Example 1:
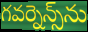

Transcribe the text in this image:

గవర్నెన్స్‌ను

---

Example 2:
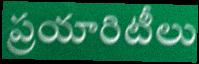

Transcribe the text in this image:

ప్రయారిటీలు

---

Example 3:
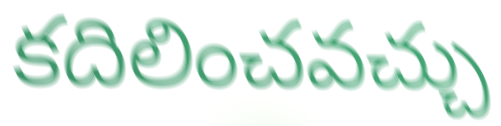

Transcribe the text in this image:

కదిలించవచ్చు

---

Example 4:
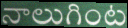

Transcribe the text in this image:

నాలుగింట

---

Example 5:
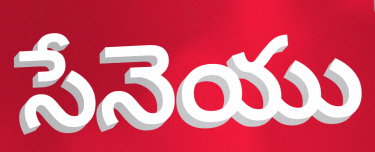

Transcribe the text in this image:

సేనెయు